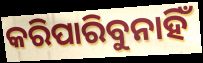
କରିପାରିବୁନାହିଁ